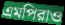
এমপিরাও